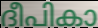
ദീപികാ